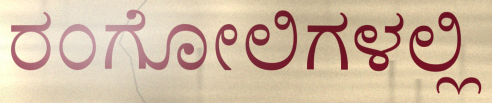
ರಂಗೋಲಿಗಳಲ್ಲಿ